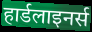
हार्डलाइनर्स